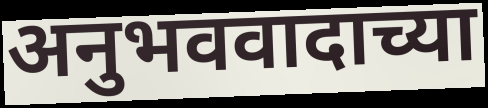
अनुभववादाच्या